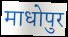
माधोपुर